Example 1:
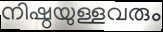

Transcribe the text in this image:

നിഷ്ഠയുള്ളവരും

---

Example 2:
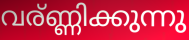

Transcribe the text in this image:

വര്ണ്ണിക്കുന്നു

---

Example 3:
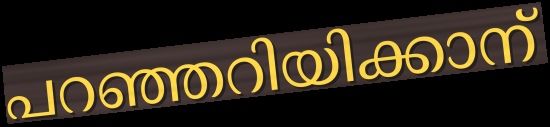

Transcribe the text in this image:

പറഞ്ഞറിയിക്കാന്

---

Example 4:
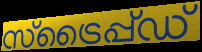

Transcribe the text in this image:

സ്ട്രൈപ്പ്ഡ്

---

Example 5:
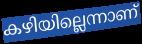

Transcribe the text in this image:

കഴിയില്ലെന്നാണ്